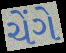
ચેંગે